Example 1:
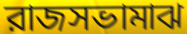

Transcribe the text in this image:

রাজসভামাঝ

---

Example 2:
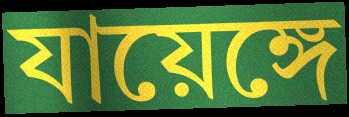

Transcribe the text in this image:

যায়েঙ্গে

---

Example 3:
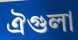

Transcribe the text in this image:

ঐগুলা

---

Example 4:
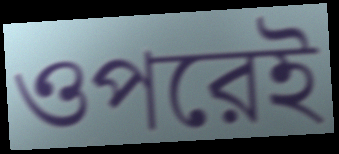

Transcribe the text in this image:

ওপরেই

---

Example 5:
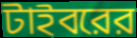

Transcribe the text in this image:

টাইবরের